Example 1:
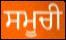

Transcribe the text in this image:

ਸਮੂਚੀ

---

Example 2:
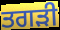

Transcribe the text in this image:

ਤਗੜੀ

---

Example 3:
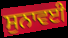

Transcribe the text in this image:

ਸੁਨਾਵਈ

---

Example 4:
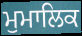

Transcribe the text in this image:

ਮੁਮਾਲਿਕ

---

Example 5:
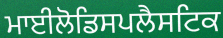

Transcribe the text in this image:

ਮਾਈਲੋਡਿਸਪਲੈਸਟਿਕ